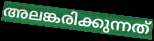
അലങ്കരിക്കുന്നത്